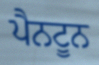
ਪੈਨਟੂਨ